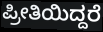
ಪ್ರೀತಿಯಿದ್ದರೆ